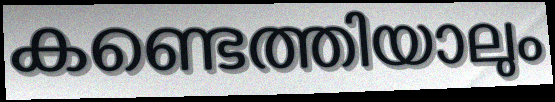
കണ്ടെത്തിയാലും